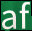
af